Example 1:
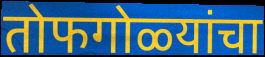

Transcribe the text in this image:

तोफगोळ्यांचा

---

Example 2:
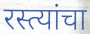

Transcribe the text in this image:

रस्त्यांचा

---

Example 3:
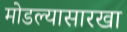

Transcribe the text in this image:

मोडल्यासारखा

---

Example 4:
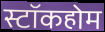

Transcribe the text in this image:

स्टॉकहोम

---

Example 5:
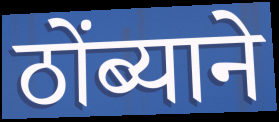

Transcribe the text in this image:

ठोंब्याने